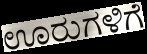
ಊರುಗಳಿಗೆ